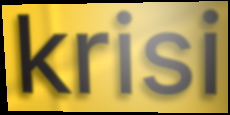
krisi